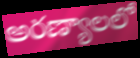
అరణ్యాలలో